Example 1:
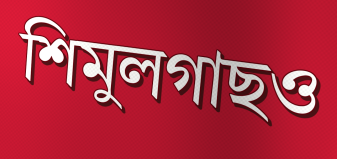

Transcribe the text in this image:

শিমুলগাছও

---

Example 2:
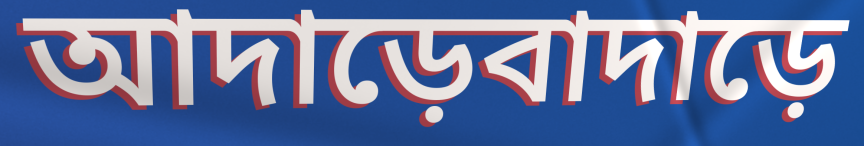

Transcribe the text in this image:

আদাড়েবাদাড়ে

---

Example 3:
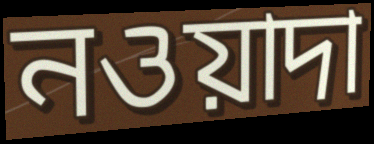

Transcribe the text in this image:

নওয়াদা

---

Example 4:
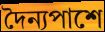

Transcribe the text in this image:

দৈন্যপাশে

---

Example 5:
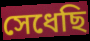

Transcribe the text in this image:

সেধেছি